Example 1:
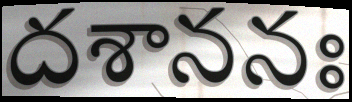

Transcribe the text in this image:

దశాననః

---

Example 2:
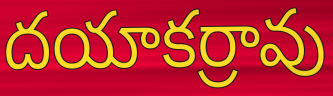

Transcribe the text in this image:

దయాకర్రావు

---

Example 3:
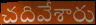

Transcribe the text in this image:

చదివేశారు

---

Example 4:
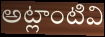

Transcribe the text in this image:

అట్లాంటివి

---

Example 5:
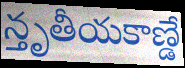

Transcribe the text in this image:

న్తృతీయకాణ్డే